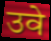
उवे